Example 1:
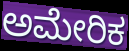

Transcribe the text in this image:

ಅಮೇರಿಕ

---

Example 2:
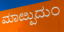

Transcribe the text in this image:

ಮಾೞ್ಪುದುಂ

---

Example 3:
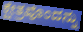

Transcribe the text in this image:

ಕ್ಷೇತ್ರವೊಂದನ್ನು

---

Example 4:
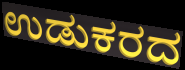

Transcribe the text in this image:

ಉಡುಕರದ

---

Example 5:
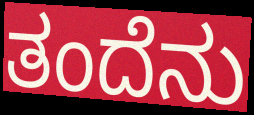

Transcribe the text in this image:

ತಂದೆನು